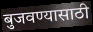
बुजवण्यासाठी